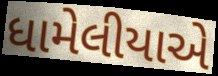
ધામેલીયાએ